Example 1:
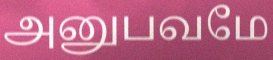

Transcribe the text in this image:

அனுபவமே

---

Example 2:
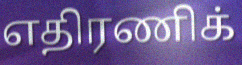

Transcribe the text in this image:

எதிரணிக்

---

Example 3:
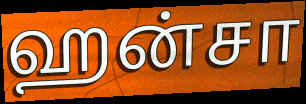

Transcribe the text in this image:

ஹன்சா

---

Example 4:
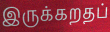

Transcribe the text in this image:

இருக்கறதப்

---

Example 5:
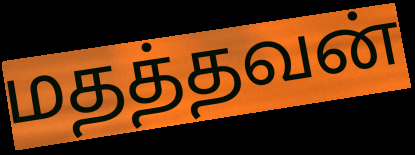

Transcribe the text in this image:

மதத்தவன்